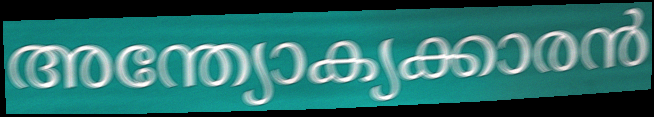
അന്ത്യോക്യക്കാരൻ